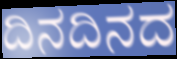
ದಿನದಿನದ